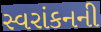
સ્વરાંકનની